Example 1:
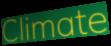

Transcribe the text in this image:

Climate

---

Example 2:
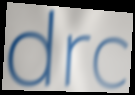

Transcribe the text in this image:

drc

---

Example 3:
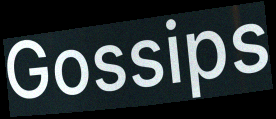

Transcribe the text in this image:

Gossips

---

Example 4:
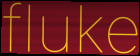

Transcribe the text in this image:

fluke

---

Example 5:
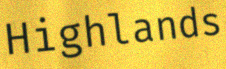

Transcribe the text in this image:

Highlands